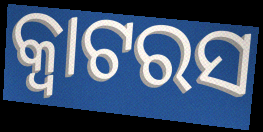
କ୍ୱାଟରସ